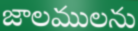
జాలములను